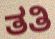
ತತಿ